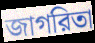
জাগরিতা